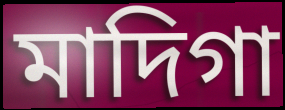
মাদিগা